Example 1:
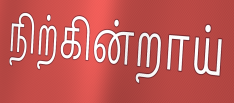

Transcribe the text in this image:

நிற்கின்றாய்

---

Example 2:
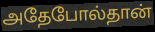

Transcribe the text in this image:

அதேபோல்தான்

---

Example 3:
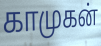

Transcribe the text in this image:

காமுகன்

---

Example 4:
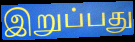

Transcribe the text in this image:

இறுப்பது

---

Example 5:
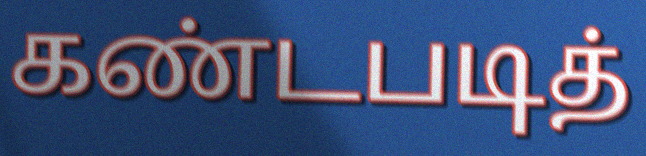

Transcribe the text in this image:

கண்டபடித்